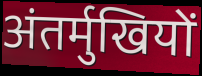
अंतर्मुखियों